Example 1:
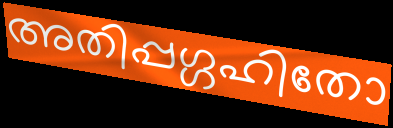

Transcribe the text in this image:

അതിപ്പഗ്ഗഹിതോ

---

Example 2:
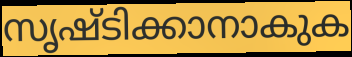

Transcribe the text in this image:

സൃഷ്ടിക്കാനാകുക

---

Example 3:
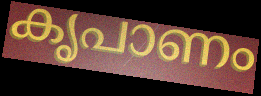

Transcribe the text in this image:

കൃപാണം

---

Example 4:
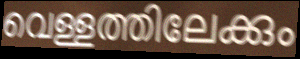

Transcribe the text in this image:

വെള്ളത്തിലേക്കും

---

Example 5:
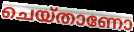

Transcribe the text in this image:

ചെയ്താണോ